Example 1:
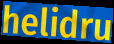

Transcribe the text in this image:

helidru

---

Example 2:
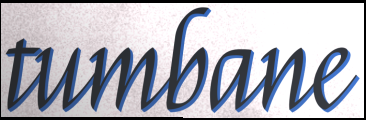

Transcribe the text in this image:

tumbane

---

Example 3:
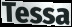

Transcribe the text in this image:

Tessa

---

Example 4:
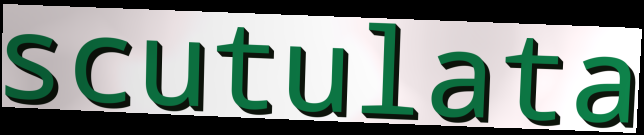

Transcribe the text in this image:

scutulata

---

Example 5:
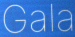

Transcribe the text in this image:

Gala